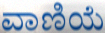
ವಾಣಿಯೆ